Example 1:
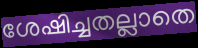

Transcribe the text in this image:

ശേഷിച്ചതല്ലാതെ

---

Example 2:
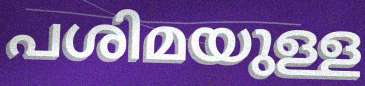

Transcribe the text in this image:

പശിമയുള്ള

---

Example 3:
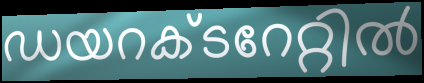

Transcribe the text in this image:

ഡയറക്ടറേറ്റിൽ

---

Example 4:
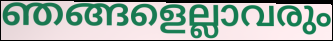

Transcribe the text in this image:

ഞങ്ങളെല്ലാവരും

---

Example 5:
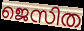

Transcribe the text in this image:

ജെസിത